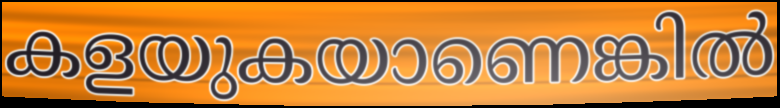
കളയുകയാണെങ്കിൽ